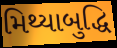
મિથ્યાબુદ્ધિ